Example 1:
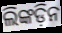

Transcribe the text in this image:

ଲିଙ୍କଡ଼ିନ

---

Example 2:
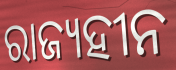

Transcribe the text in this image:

ରାଜ୍ୟହୀନ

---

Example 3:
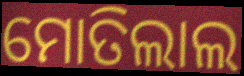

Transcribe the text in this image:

ମୋତିଲାଲ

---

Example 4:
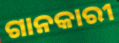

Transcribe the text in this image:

ଗାନକାରୀ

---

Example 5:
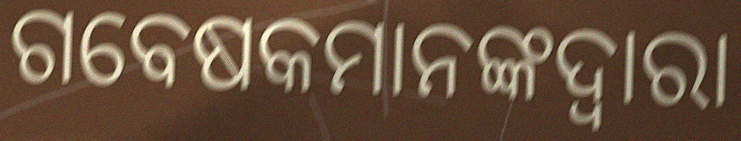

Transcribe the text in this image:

ଗବେଷକମାନଙ୍କଦ୍ୱାରା